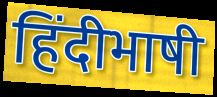
हिंदीभाषी